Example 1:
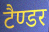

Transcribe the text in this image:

टैण्डर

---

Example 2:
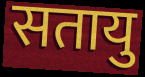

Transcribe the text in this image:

सतायु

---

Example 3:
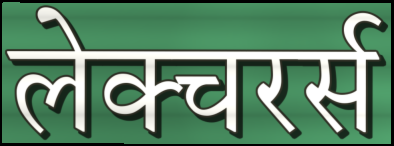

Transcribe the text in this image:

लेक्चरर्स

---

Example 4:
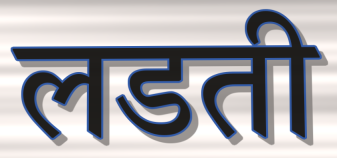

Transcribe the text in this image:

लडती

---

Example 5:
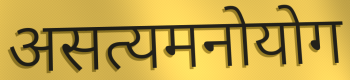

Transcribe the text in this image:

असत्यमनोयोग